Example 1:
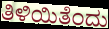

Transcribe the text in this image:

ತಿಳಿಯಿತೆಂದು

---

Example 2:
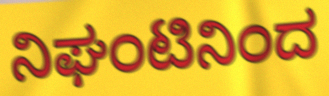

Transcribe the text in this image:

ನಿಘಂಟಿನಿಂದ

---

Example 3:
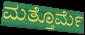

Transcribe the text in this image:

ಮತ್ತೊರ್ಮೆ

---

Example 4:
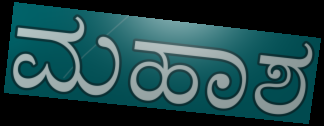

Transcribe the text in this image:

ಮಹಾಶ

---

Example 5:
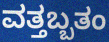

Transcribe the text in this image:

ವತ್ತಬ್ಬತಂ